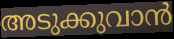
അടുക്കുവാൻ